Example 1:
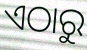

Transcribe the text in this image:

ଏଠାରୁ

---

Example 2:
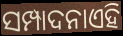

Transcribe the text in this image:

ସମ୍ପାଦନାଏହି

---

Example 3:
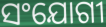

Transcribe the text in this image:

ସଂଯୋଗୀ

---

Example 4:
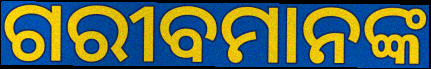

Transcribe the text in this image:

ଗରୀବମାନଙ୍କ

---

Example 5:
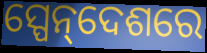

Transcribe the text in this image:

ସ୍ପେନ୍‌ଦେଶରେ